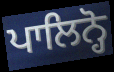
ਪਾਲਿਨ੍ਹੋ